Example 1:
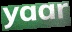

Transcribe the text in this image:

yaar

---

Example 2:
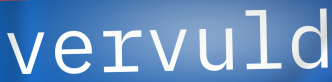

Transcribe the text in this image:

vervuld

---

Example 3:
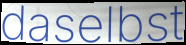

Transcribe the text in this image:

daselbst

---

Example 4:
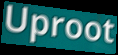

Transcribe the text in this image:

Uproot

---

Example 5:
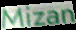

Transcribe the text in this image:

Mizan